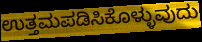
ಉತ್ತಮಪಡಿಸಿಕೊಳ್ಳುವುದು